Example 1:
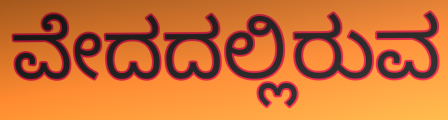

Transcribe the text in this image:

ವೇದದಲ್ಲಿರುವ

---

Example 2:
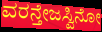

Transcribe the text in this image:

ವರನ್ತೇಜಸ್ವಿನೋ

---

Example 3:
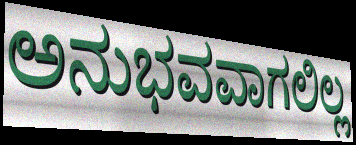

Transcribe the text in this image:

ಅನುಭವವಾಗಲಿಲ್ಲ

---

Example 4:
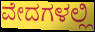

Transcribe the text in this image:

ವೇದಗಳಲ್ಲಿ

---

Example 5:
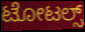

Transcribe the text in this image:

ಟೋಟಲ್ಸ್